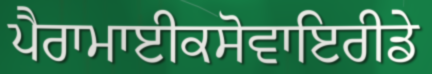
ਪੈਰਾਮਾਈਕਸੋਵਾਇਰੀਡੇ